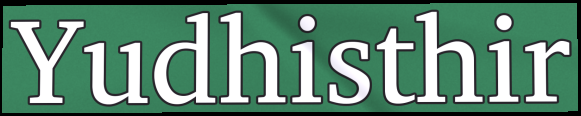
Yudhisthir